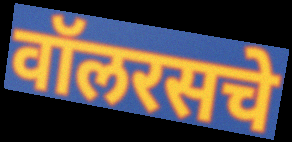
वॉलरसचे